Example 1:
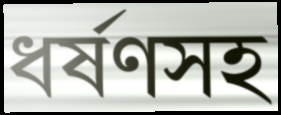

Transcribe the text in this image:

ধর্ষণসহ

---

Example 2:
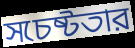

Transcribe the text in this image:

সচেষ্টতার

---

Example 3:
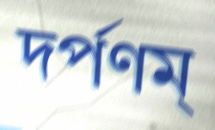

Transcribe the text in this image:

দর্পণম্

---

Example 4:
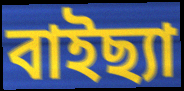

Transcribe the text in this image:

বাইছ্যা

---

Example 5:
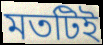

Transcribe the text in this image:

মতটিই